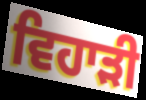
ਵਿਹਾੜੀ